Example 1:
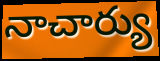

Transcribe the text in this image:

నాచార్యు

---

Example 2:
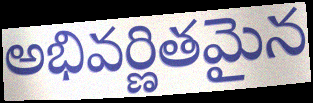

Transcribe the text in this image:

అభివర్ణితమైన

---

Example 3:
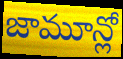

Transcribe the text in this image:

జామూన్లో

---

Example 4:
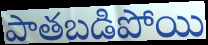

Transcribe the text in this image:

పాతబడిపోయి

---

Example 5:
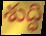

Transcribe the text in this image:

శుద్ధి